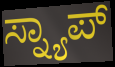
ಸ್ನ್ಯಾಪ್